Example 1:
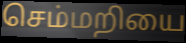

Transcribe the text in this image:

செம்மறியை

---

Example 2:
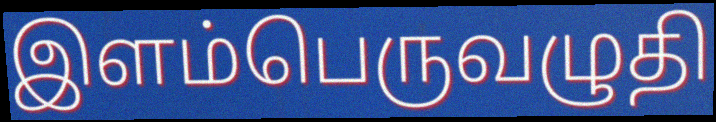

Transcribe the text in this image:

இளம்பெருவழுதி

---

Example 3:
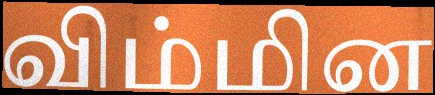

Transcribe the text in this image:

விம்மின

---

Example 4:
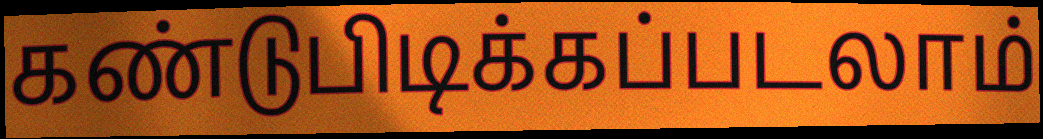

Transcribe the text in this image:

கண்டுபிடிக்கப்படலாம்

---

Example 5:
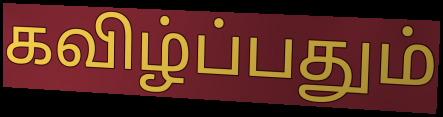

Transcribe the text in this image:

கவிழ்ப்பதும்